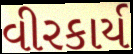
વીરકાર્ય